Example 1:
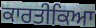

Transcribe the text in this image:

ਕਾਰਤੀਕਿਆ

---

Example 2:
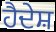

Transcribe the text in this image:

ਹੈਦੇਸ਼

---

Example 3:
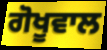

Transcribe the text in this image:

ਗੋਖੂਵਾਲ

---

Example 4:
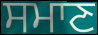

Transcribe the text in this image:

ਸਮਾਣ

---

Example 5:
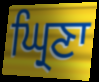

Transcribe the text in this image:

ਘ੍ਰਿਣਾ